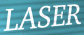
LASER